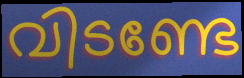
വിടണ്ടേ